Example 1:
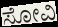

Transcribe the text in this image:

ಸೋವಿ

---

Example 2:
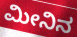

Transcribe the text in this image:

ಮೀನಿನ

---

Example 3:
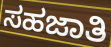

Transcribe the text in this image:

ಸಹಜಾತಿ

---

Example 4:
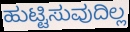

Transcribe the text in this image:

ಹುಟ್ಟಿಸುವುದಿಲ್ಲ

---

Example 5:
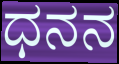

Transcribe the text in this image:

ಧನನ